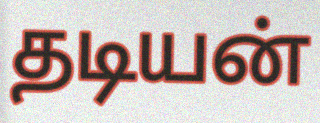
தடியன்